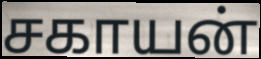
சகாயன்